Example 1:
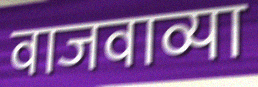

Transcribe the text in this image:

वाजवाव्या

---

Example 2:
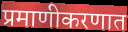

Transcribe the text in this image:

प्रमाणीकरणात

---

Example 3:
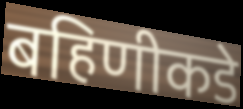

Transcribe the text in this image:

बहिणीकडे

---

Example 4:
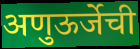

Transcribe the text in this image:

अणुऊर्जेची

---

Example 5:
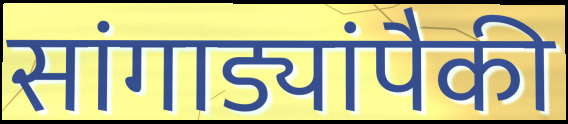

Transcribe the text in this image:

सांगाड्यांपैकी